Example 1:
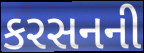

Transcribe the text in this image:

કરસનની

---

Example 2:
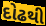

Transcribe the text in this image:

દોઢથી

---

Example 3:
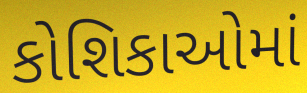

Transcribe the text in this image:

કોશિકાઓમાં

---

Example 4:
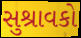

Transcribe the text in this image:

સુશ્રાવકો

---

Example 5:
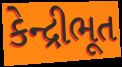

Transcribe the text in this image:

કેન્દ્રીભૂત